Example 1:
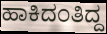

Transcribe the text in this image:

ಹಾಕಿದಂತಿದ್ದ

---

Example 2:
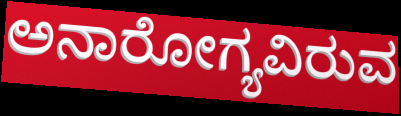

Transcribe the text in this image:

ಅನಾರೋಗ್ಯವಿರುವ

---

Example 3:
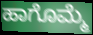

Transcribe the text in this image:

ಹಾಗೊಮ್ಮೆ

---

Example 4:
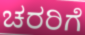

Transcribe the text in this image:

ಚರರಿಗೆ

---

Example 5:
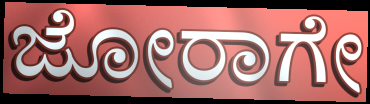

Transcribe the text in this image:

ಜೋರಾಗೇ